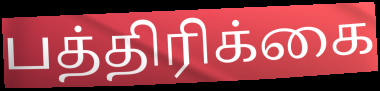
பத்திரிக்கை